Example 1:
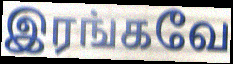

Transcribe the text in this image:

இரங்கவே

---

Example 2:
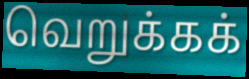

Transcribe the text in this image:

வெறுக்கக்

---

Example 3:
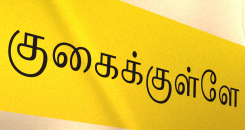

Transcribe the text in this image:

குகைக்குள்ளே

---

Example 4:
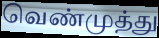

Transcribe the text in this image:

வெண்முத்து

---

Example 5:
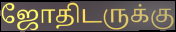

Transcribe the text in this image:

ஜோதிடருக்கு